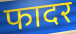
फादर